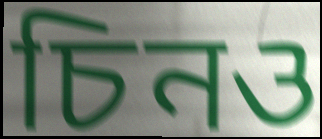
চিনও